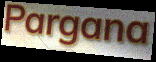
Pargana